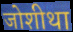
जोशीथा